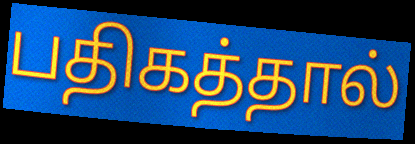
பதிகத்தால்